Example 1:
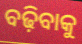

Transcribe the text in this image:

ବଢ଼ିବାକୁ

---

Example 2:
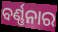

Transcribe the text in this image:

ବର୍ଣ୍ଣନାର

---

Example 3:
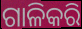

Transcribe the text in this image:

ଗାଳିକରି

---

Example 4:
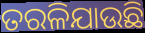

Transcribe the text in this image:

ତରଳିଯାଉଛି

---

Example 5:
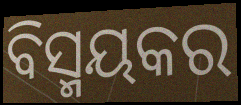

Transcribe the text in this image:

ବିସ୍ମୟକର